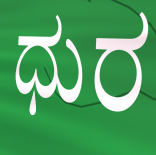
ಧುರ